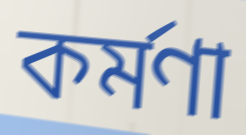
কর্মণা